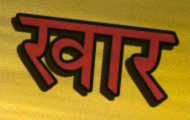
खार